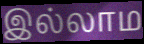
இல்லாம